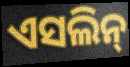
ଏସଲିନ୍